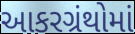
આકરગ્રંથોમાં